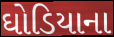
ઘોડિયાના